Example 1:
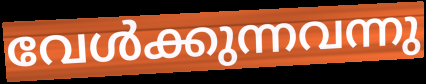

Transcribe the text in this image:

വേൾക്കുന്നവന്നു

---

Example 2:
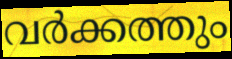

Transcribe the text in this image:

വർക്കത്തും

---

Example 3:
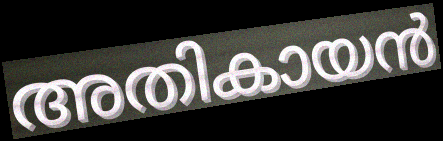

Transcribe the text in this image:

അതികായൻ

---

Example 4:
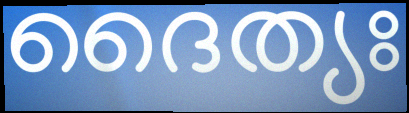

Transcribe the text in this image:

ദൈത്യഃ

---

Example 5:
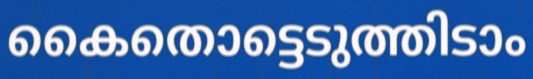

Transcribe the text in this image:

കൈതൊട്ടെടുത്തിടാം